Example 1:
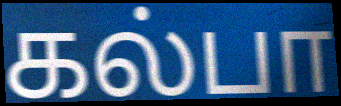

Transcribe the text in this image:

கல்பா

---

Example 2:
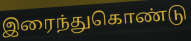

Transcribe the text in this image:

இரைந்துகொண்டு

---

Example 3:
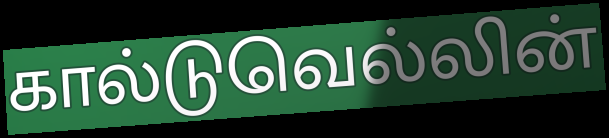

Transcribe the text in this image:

கால்டுவெல்லின்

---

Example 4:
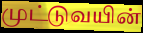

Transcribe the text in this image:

முட்டுவயின்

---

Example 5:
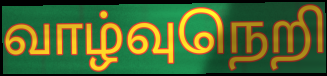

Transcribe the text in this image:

வாழ்வுநெறி